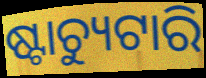
ଷ୍ଟାଚ୍ୟୁଟାରି